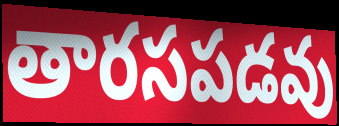
తారసపడవు